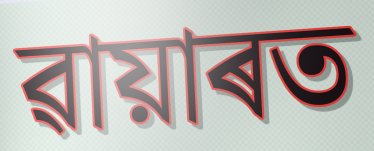
ৱায়াৰত